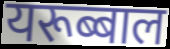
यरूब्बाल